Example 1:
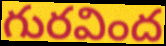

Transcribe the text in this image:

గురవింద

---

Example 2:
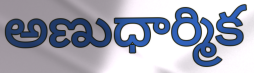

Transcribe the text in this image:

అణుధార్మిక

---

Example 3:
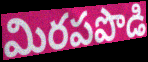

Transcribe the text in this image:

మిరపపొడి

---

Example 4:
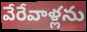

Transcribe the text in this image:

వేరేవాళ్లను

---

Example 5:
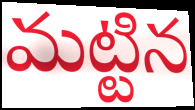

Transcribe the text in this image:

మట్టిన